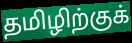
தமிழிற்குக்